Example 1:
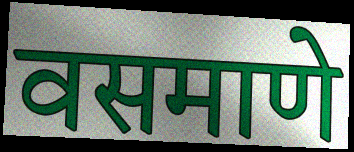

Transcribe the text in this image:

वसमाणे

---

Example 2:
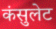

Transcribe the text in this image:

कंसुलेट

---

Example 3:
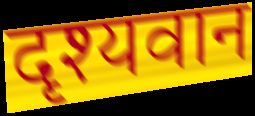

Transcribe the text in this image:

दृश्यवान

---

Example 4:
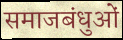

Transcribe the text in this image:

समाजबंधुओं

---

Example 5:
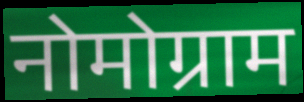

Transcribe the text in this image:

नोमोग्राम